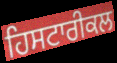
ਹਿਸਟਾਰੀਕਲ